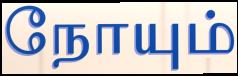
நோயும்